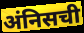
अंनिसची